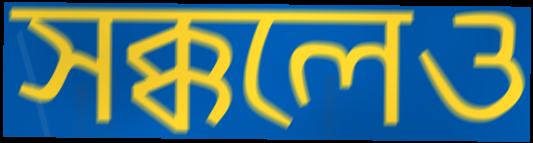
সক্কলেও